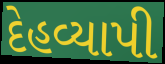
દેહવ્યાપી